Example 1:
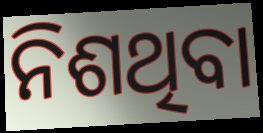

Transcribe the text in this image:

ନିଶଥିବା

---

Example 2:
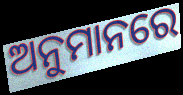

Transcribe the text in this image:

ଅନୁମାନରେ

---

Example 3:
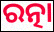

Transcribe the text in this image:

ରତ୍ନା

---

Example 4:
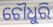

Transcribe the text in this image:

ଚୌଧୁରି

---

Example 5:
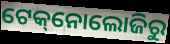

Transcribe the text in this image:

ଟେକ୍‌ନୋଲୋଜିରୁ